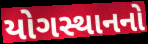
યોગસ્થાનનો